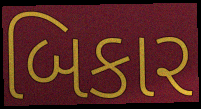
બિકાર